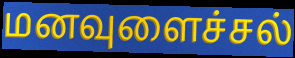
மனவுளைச்சல்